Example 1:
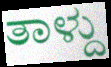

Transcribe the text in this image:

ತಾಳ್ದು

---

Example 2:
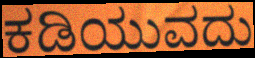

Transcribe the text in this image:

ಕಡಿಯುವದು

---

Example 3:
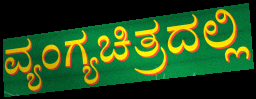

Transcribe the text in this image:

ವ್ಯಂಗ್ಯಚಿತ್ರದಲ್ಲಿ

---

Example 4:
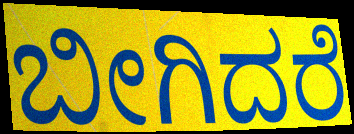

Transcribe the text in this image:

ಬೀಗಿದರೆ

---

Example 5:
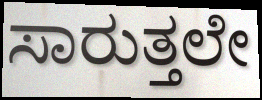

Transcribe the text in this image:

ಸಾರುತ್ತಲೇ